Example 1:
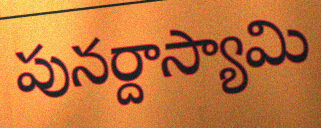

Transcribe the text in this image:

పునర్దాస్యామి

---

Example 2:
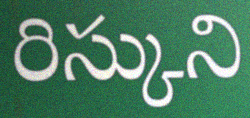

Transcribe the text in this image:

రిస్కుని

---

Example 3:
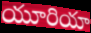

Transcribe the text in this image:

యూరియా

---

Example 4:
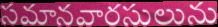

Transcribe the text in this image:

సమానవారసులును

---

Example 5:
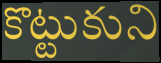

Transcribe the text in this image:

కొట్టుకుని